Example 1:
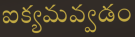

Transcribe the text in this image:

ఐక్యమవ్వడం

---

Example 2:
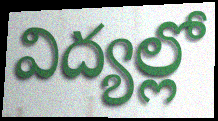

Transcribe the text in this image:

విద్యల్లో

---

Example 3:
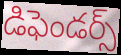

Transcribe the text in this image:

డిఫెండర్స్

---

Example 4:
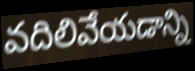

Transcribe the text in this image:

వదిలివేయడాన్ని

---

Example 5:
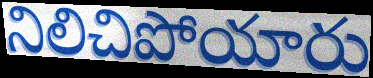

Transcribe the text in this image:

నిలిచిపోయారు